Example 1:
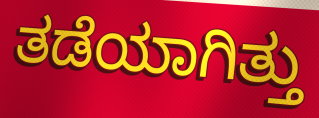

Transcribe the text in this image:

ತಡೆಯಾಗಿತ್ತು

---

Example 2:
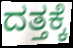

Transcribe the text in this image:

ದತ್ತಕ್ಕೆ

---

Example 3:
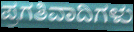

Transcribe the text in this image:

ಪ್ರಗತಿವಾದಿಗಳು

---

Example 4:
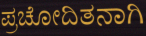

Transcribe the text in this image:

ಪ್ರಚೋದಿತನಾಗಿ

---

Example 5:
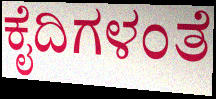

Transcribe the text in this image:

ಕೈದಿಗಳಂತೆ